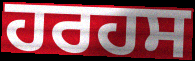
ਹਰਹਸ